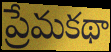
ప్రేమకథా